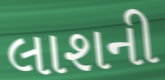
લાશની